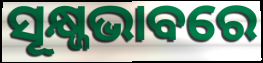
ସୂକ୍ଷ୍ଜଭାବରେ